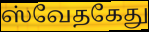
ஸ்வேதகேது